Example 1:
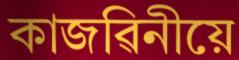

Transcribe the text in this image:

কাজৱিনীয়ে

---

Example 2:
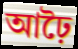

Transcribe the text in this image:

আঢ়ৈ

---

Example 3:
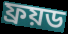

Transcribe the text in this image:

ফ্ৰয়ড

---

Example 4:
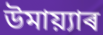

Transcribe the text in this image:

উমায়্যাৰ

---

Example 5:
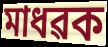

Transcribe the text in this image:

মাধৱক